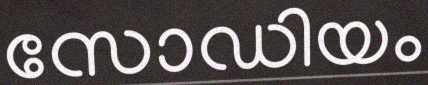
സോഡിയം